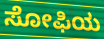
ಸೋಫಿಯ